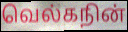
வெல்கநின்